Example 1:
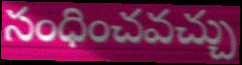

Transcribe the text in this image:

సంధించవచ్చు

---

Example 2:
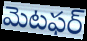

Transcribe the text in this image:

మెటఫర్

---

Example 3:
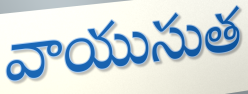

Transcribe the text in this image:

వాయుసుత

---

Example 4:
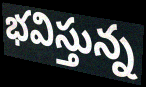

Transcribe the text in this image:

భవిస్తున్న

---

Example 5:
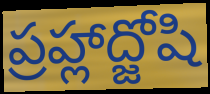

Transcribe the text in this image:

ప్రహ్లాద్జోషి